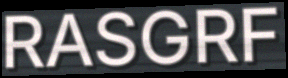
RASGRF